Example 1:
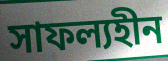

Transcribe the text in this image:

সাফল্যহীন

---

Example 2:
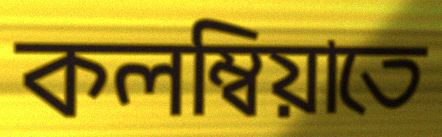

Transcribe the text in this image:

কলম্বিয়াতে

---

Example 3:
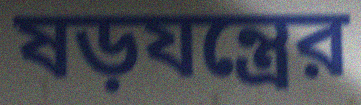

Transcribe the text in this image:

ষড়যন্ত্রের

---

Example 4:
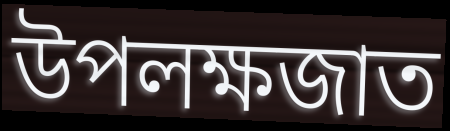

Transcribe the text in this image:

উপলক্ষজাত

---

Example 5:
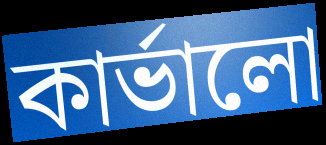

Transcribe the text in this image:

কার্ভালো